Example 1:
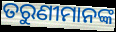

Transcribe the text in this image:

ତରୁଣୀମାନଙ୍କ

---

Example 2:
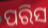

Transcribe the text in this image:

ପରିସ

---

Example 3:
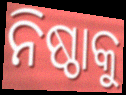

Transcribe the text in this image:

ନିଷ୍ଠାକୁ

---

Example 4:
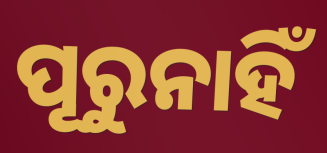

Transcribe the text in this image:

ପୂରୁନାହିଁ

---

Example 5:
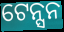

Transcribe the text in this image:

ଟେନ୍ସନ